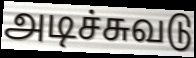
அடிச்சுவடு